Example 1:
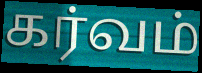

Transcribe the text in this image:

கர்வம்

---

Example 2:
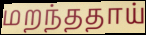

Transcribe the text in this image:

மறந்ததாய்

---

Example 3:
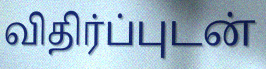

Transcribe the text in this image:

விதிர்ப்புடன்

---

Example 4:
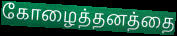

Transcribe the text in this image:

கோழைத்தனத்தை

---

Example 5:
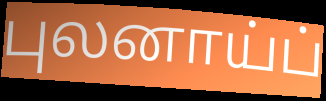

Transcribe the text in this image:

புலனாய்ப்